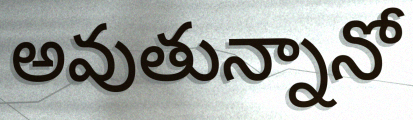
అవుతున్నానో